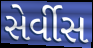
સેર્વીસ